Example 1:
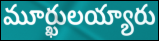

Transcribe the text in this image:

మూర్ఖులయ్యారు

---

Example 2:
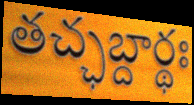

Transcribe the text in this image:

తచ్ఛబ్దార్థః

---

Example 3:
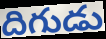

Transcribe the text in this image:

దిగుడు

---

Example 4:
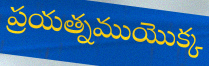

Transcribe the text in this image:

ప్రయత్నముయొక్క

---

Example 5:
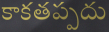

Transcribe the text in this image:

కాకతప్పదు